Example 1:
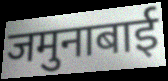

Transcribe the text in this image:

जमुनाबाई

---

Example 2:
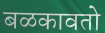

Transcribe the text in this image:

बळकावतो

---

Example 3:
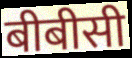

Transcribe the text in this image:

बीबीसी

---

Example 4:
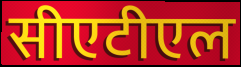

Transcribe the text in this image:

सीएटीएल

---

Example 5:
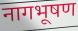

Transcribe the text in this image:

नागभूषण